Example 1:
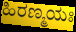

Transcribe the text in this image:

ಹಿರಣ್ಮಯಃ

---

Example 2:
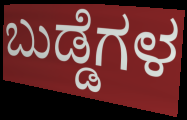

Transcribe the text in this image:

ಬುಡ್ಡೆಗಳ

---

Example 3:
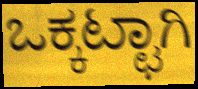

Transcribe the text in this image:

ಒಕ್ಕಟ್ಟಾಗಿ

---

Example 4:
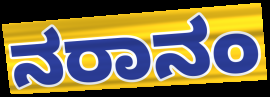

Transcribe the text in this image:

ನರಾನಂ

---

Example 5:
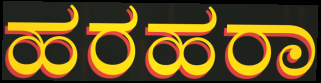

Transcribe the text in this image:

ಹರಹರಾ